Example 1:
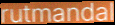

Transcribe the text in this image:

rutmandal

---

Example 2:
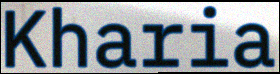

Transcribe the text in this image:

Kharia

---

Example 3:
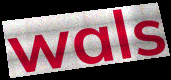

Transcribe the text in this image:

wals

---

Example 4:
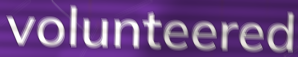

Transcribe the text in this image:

volunteered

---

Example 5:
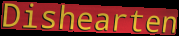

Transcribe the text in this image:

Dishearten